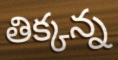
తిక్కన్న